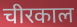
चीरकाल